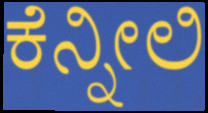
ಕೆನ್ನೀಲಿ